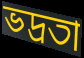
ভদ্রতা